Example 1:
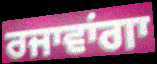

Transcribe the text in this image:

ਰਜਾਵਾਂਗਾ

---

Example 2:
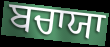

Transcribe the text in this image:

ਬਚਾਯਾ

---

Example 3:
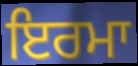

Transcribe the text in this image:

ਇਰਮਾ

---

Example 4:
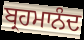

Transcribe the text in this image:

ਬ੍ਰਹਮਾਨੰਦ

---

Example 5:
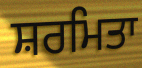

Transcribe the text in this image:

ਸ਼ਰਮਿਤਾ